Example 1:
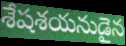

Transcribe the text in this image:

శేషశయనుడైన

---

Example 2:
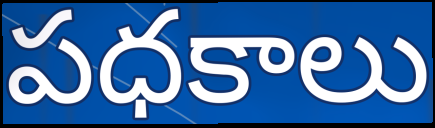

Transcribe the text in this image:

పధకాలు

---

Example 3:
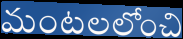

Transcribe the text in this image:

మంటలలోంచి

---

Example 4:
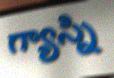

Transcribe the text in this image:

గ్యాస్ని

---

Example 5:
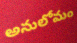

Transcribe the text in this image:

అనులోమం